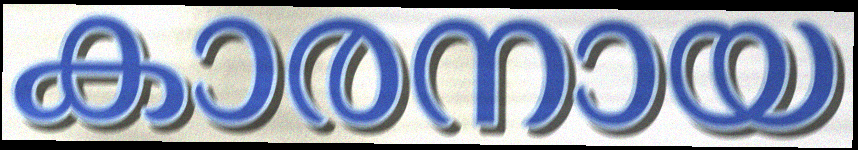
കാരനായ